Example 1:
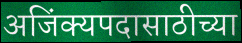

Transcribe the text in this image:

अजिंक्यपदासाठीच्या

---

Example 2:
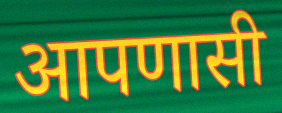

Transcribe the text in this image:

आपणासी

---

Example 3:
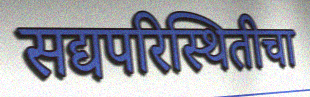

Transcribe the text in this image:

सद्यपरिस्थितीचा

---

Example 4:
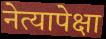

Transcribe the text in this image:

नेत्यापेक्षा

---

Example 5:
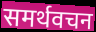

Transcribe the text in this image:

समर्थवचन